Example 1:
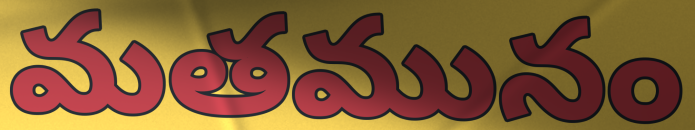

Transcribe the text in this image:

మతమునం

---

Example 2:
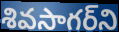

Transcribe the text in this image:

శివసాగర్‌ని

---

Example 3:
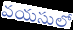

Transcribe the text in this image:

వయసులో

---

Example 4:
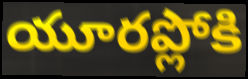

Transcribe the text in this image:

యూరప్లోకి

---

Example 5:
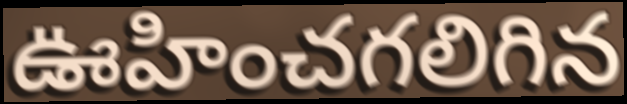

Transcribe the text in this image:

ఊహించగలిగిన